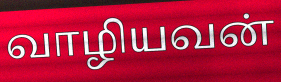
வாழியவன்